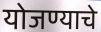
योजण्याचे